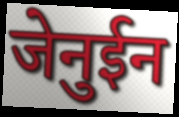
जेनुईन